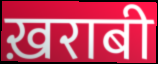
ख़राबी